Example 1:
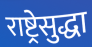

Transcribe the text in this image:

राष्ट्रेसुद्धा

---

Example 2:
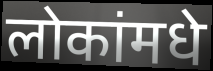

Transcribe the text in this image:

लोकांमधे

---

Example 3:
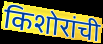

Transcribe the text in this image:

किशोरांची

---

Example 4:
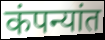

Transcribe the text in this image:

कंपन्यांत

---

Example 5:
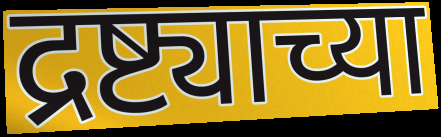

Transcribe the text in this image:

द्रष्ट्याच्या